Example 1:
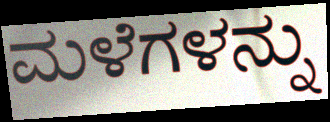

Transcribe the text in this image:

ಮಳೆಗಳನ್ನು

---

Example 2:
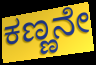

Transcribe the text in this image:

ಕಣ್ಣನೇ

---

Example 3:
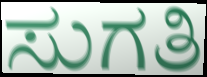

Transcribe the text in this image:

ಸುಗತಿ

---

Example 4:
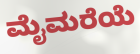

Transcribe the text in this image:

ಮೈಮರೆಯೆ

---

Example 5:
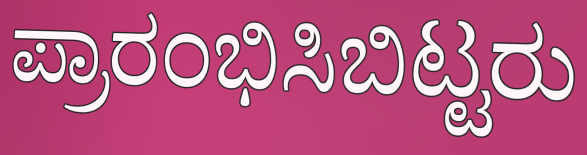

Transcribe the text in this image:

ಪ್ರಾರಂಭಿಸಿಬಿಟ್ಟರು